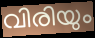
വിരിയും